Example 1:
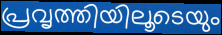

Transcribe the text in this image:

പ്രവൃത്തിയിലൂടെയും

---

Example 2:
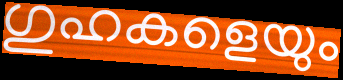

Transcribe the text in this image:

ഗുഹകളെയും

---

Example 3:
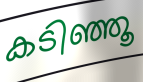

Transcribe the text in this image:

കടിഞ്ഞൂ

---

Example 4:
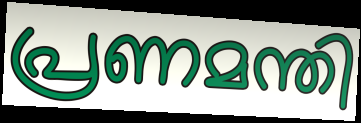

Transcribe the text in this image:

പ്രണമന്തി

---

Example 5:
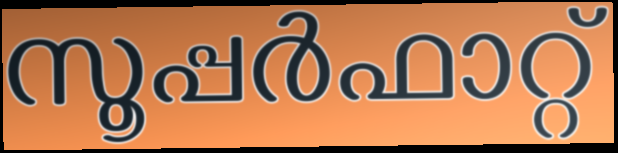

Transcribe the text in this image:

സൂപ്പർഫാറ്റ്